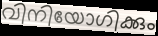
വിനിയോഗിക്കും